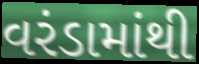
વરંડામાંથી